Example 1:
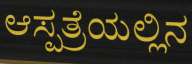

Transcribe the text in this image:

ಆಸ್ಪತ್ರೆಯಲ್ಲಿನ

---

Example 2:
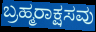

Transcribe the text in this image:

ಬ್ರಹ್ಮರಾಕ್ಷಸವು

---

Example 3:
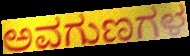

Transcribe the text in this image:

ಅವಗುಣಗಳ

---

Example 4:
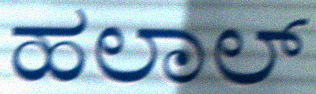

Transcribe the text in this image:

ಹಲಾಲ್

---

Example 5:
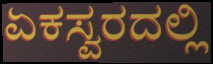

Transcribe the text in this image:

ಏಕಸ್ವರದಲ್ಲಿ